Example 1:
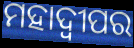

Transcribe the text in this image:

ମହାଦ୍ୱୀପର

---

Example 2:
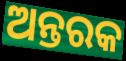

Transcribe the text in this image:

ଅନ୍ତରକ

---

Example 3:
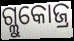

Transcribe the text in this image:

ଗ୍ଲୁକୋଜ୍ର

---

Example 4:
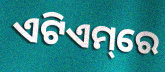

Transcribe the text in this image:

ଏଟିଏମ୍‌ରେ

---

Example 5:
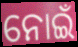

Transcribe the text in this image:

ନୋଇଁ